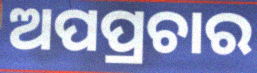
ଅପପ୍ରଚାର